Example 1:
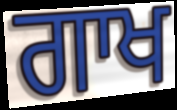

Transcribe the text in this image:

ਗਾਖ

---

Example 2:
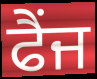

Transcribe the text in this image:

ਫੈਂਜ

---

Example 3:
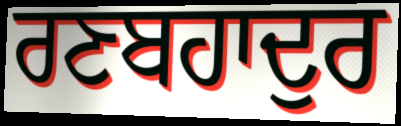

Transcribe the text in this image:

ਰਣਬਹਾਦੁਰ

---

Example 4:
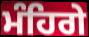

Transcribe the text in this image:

ਮੰਹਿਗੇ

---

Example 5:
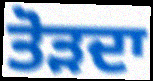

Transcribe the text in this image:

ਤੋੜਦਾ